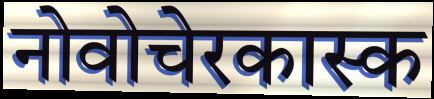
नोवोचेरकास्क